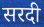
सरदी